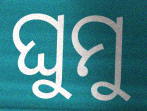
ଘୁମୁ